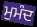
ਮੁਮੰਦ